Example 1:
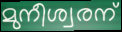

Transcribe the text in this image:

മുനീശ്വരന്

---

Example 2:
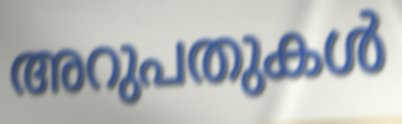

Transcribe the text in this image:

അറുപതുകൾ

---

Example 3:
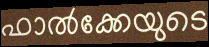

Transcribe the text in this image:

ഫാൽക്കേയുടെ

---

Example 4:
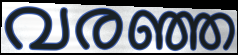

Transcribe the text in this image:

വരഞ്ഞ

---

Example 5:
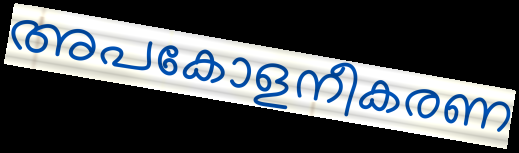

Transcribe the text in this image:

അപകോളനീകരണ